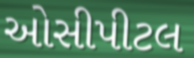
ઓસીપીટલ